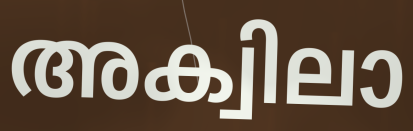
അക്വിലാ